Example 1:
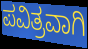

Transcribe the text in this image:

ಪವಿತ್ರವಾಗಿ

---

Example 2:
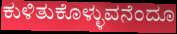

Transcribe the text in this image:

ಕುಳಿತುಕೊಳ್ಳುವನೆಂದೂ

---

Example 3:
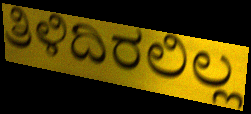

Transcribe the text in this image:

ತಿಳಿದಿರಲಿಲ್ಲ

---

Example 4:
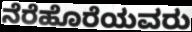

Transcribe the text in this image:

ನೆರೆಹೊರೆಯವರು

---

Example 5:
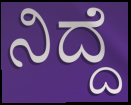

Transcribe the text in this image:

ನಿದ್ದೆ